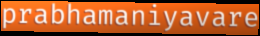
prabhamaniyavare